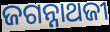
ଜଗନ୍ନାଥଜୀ